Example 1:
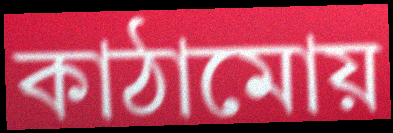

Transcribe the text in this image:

কাঠামোয়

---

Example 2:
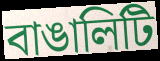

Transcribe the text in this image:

বাঙালিটি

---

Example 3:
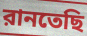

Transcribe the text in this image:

রানতেছি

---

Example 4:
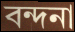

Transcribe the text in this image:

বন্দনা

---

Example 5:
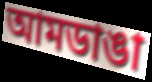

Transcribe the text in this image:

আমডাঙা